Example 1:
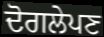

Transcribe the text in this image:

ਦੋਗਲੇਪਣ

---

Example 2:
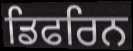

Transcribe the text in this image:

ਡਿਫਰਿਨ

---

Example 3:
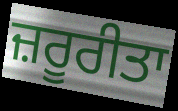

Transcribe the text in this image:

ਜ਼ਰੂਰੀਤਾ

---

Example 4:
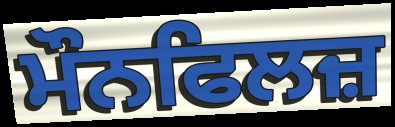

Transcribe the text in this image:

ਮੌਨਫਿਲਜ਼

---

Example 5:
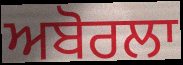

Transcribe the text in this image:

ਅਬੋਰਲਾ